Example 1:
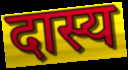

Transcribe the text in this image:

दास्य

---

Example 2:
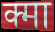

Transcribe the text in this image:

क्मा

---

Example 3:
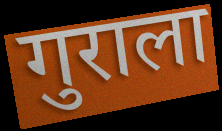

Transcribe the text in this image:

गुराला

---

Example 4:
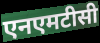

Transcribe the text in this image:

एनएमटीसी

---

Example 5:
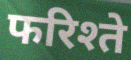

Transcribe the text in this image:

फरिश्ते